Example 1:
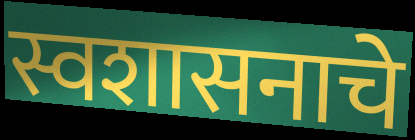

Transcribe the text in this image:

स्वशासनाचे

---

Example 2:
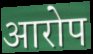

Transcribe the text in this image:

आरोप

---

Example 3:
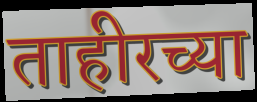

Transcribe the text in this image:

ताहीरच्या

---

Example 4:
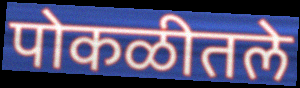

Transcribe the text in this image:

पोकळीतले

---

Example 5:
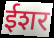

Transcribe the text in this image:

ईशर